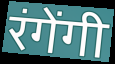
रंगेंगी